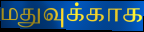
மதுவுக்காக